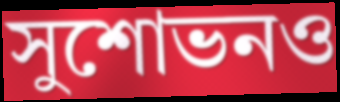
সুশোভনও